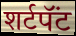
शर्टपॅंट